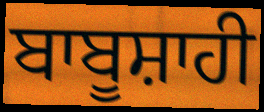
ਬਾਬੂਸ਼ਾਹੀ